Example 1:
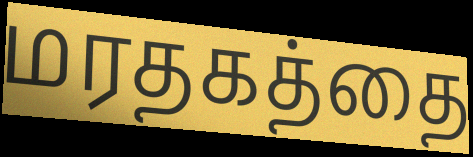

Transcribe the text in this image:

மரதகத்தை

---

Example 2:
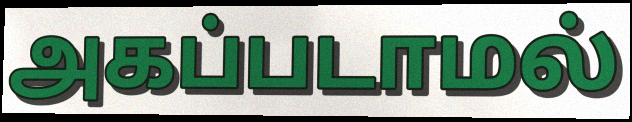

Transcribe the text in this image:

அகப்படாமல்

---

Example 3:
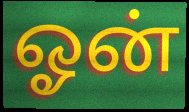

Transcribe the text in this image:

ஓன்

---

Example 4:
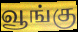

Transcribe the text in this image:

வூங்கு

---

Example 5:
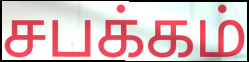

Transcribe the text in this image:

சபக்கம்